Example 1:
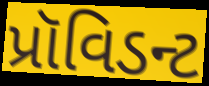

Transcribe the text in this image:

પ્રૉવિડન્ટ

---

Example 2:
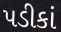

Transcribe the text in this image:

પડીકાં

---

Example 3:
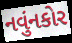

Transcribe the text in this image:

નવુંનકોર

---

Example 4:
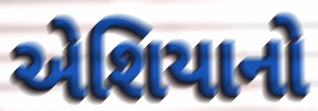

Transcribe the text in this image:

એશિયાનો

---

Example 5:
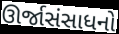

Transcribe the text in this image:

ઊર્જાસંસાધનો